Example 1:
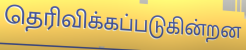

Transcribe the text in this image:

தெரிவிக்கப்படுகின்றன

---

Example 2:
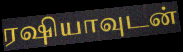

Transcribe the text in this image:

ரஷியாவுடன்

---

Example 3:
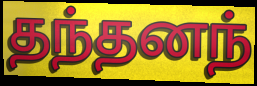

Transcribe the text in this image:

தந்தனந்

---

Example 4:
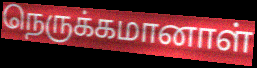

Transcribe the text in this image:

நெருக்கமானாள்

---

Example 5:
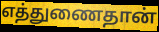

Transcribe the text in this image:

எத்துணைதான்